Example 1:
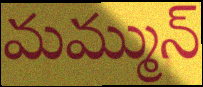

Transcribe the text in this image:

మమ్మున్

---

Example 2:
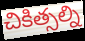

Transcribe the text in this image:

చికిత్సల్ని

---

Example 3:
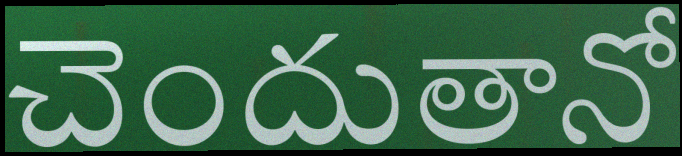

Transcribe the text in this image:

చెందుతానో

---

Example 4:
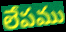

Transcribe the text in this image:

లేపము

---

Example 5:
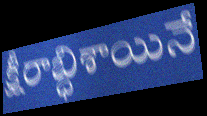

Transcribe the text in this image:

క్షీరాబ్ధిశాయినే